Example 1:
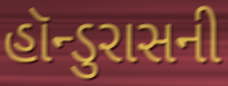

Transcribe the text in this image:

હૉન્ડુરાસની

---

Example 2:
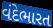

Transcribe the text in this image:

વંદેભારત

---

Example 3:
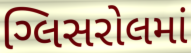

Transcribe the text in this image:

ગ્લિસરોલમાં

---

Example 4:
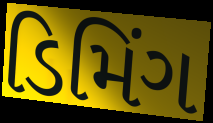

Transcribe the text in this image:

ડિમિંગ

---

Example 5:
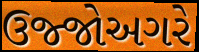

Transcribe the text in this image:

ઉજ્જોઅગરે